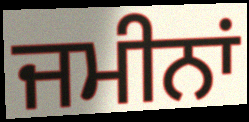
ਜਮੀਨਾਂ